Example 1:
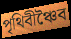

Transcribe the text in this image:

পৃথিবীঞ্চৈব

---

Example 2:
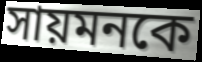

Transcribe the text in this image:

সায়মনকে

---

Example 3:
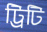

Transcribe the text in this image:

ট্রিটি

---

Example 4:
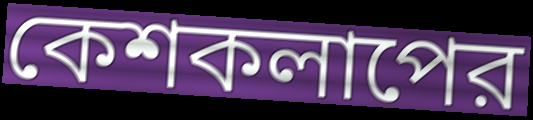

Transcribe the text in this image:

কেশকলাপের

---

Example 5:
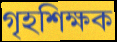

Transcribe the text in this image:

গৃহশিক্ষক